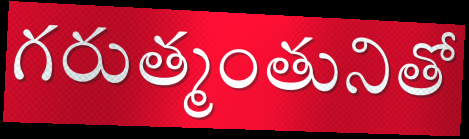
గరుత్మంతునితో